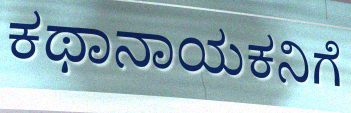
ಕಥಾನಾಯಕನಿಗೆ